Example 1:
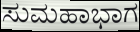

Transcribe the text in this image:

ಸುಮಹಾಭಾಗ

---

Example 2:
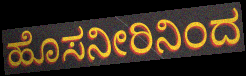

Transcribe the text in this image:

ಹೊಸನೀರಿನಿಂದ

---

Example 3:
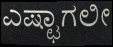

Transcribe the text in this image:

ಎಷ್ಟಾಗಲೀ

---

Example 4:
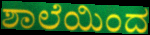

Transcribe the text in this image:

ಶಾಲೆಯಿಂದ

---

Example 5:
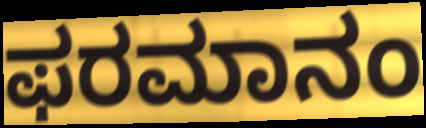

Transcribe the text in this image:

ಫರಮಾನಂ